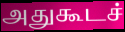
அதுகூடச்